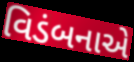
વિડંબનાએ